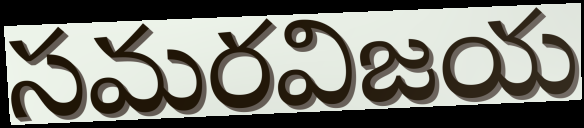
సమరవిజయ